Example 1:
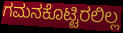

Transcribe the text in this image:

ಗಮನಕೊಟ್ಟಿರಲಿಲ್ಲ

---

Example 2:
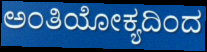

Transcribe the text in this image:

ಅಂತಿಯೋಕ್ಯದಿಂದ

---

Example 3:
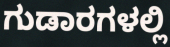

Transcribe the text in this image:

ಗುಡಾರಗಳಲ್ಲಿ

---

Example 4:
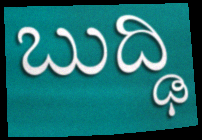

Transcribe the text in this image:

ಬುದ್ಢಿ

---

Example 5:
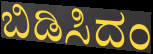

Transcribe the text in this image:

ಬಿಡಿಸಿದಂ